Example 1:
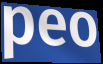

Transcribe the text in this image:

peo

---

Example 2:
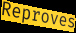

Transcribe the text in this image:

Reproves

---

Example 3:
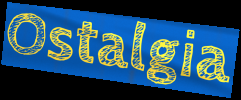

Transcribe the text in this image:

Ostalgia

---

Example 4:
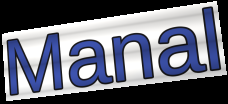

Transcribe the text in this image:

Manal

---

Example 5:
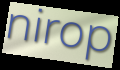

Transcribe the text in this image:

nirop